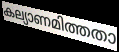
കല്യാണമിത്തതാ